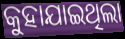
କୁହାଯାଇଥିଲା